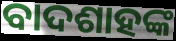
ବାଦଶାହଙ୍କ